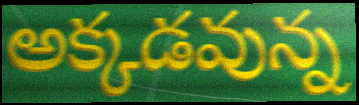
అక్కడవున్న